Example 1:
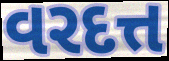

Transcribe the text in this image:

વરદત્ત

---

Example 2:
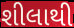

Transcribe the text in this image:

શીલાથી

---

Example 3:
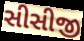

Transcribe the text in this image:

સીસીજી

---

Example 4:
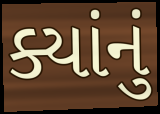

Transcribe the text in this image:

ક્યાંનું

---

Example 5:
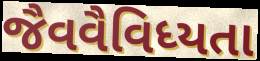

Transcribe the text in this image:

જૈવવૈવિધ્યતા